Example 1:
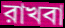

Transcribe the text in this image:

রাখবা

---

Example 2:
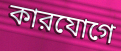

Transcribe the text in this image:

কারযোগে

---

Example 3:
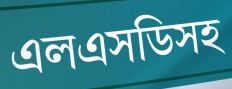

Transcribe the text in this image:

এলএসডিসহ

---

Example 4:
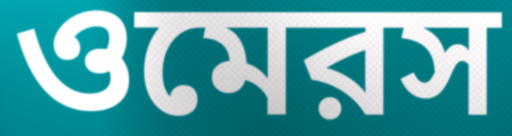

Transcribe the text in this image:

ওমেরস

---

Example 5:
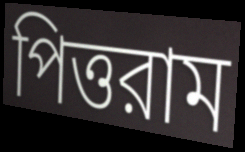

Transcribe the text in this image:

পিত্তরাম